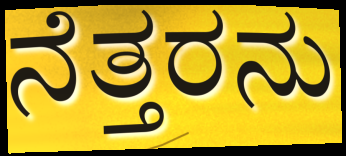
ನೆತ್ತರನು